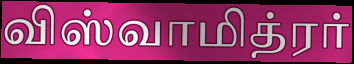
விஸ்வாமித்ரர்